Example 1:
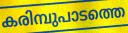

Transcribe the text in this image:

കരിമ്പുപാടത്തെ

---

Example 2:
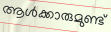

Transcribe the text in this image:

ആൾക്കാരുമുണ്ട്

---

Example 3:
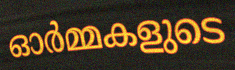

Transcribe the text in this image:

ഓർമ്മകളുടെ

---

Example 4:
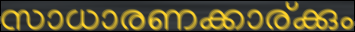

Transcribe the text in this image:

സാധാരണക്കാര്ക്കും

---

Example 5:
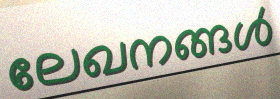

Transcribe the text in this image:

ലേഖനങ്ങൾ